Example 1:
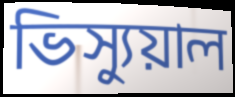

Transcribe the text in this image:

ভিস্যুয়াল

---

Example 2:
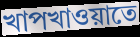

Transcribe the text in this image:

খাপখাওয়াতে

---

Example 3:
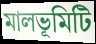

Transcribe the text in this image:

মালভূমিটি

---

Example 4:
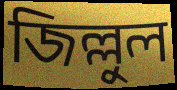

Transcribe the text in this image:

জিল্লুল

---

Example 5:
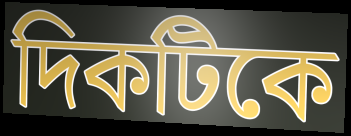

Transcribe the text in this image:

দিকটিকে